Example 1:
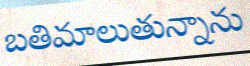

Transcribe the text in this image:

బతిమాలుతున్నాను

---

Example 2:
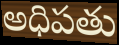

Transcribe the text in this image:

అధిపతు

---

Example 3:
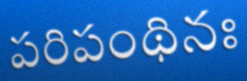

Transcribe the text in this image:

పరిపంథినః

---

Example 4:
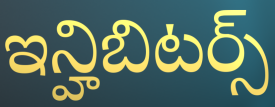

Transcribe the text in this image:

ఇన్హిబిటర్స్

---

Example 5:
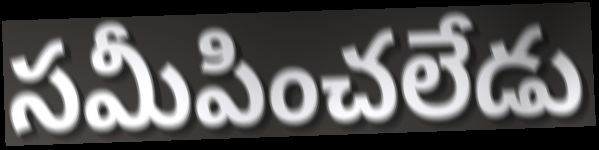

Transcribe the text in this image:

సమీపించలేడు